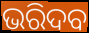
ଭରିଦବ